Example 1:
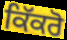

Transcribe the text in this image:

ਕਿੱਕਰੋ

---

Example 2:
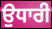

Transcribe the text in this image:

ਉਧਾਰੀ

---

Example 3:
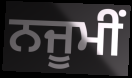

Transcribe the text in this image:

ਨਜੂਮੀਂ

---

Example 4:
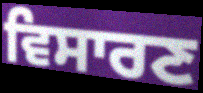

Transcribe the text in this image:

ਵਿਸਾਰਣ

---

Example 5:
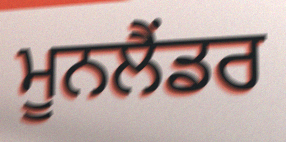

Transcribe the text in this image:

ਮੂਨਲੈਂਡਰ